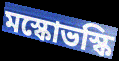
মস্কোভস্কি